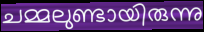
ചമ്മലുണ്ടായിരുന്നു